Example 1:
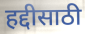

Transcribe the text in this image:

हद्दीसाठी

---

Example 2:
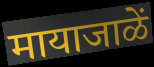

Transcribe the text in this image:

मायाजाळें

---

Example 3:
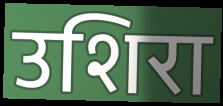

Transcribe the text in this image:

उशिरा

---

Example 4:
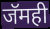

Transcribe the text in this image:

जॅमही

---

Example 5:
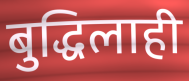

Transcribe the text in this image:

बुद्धिलाही